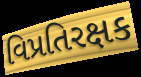
વિપ્રતિરક્ષક